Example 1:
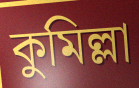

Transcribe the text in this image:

কুমিল্লা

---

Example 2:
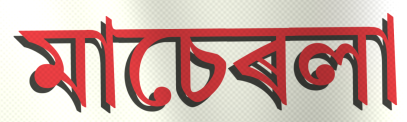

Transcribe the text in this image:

মাচেৰলা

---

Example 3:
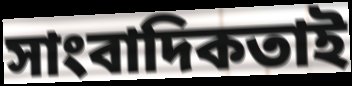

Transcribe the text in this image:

সাংবাদিকতাই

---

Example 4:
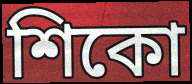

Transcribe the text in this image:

শিকো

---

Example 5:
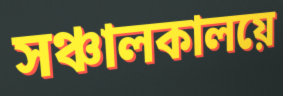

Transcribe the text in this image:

সঞ্চালকালয়ে